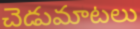
చెడుమాటలు